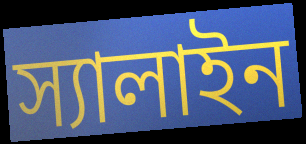
স্যালাইন